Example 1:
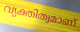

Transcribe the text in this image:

വ്യക്തിത്വമാണ്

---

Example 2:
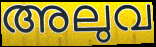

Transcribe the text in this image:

അലുവ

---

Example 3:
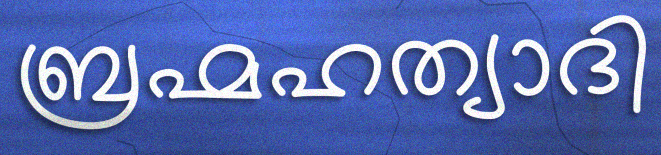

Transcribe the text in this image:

ബ്രഹ്മഹത്യാദി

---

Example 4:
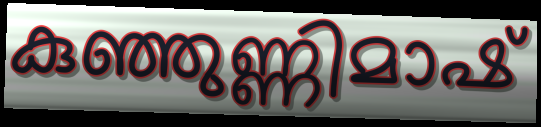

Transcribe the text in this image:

കുഞ്ഞുണ്ണിമാഷ്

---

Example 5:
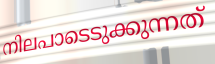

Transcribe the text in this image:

നിലപാടെടുക്കുന്നത്